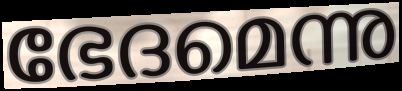
ഭേദമെന്നു